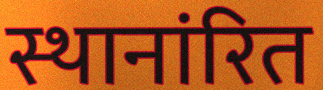
स्थानांरित